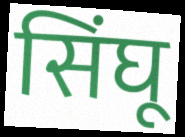
सिंघू